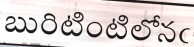
బురిటింటిలోనఁ